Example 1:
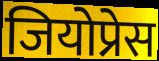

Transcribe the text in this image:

जियोप्रेस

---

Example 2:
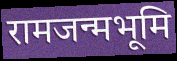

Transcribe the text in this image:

रामजन्मभूमि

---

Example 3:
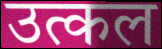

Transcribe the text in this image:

उत्कल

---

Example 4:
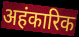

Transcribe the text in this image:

अहंकारिक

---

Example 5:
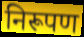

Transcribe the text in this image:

निरूपण